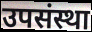
उपसंस्था